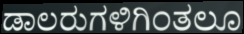
ಡಾಲರುಗಳಿಗಿಂತಲೂ